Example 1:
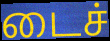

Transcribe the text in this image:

டைச்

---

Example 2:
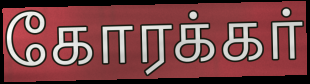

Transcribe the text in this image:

கோரக்கர்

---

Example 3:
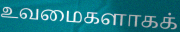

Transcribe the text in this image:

உவமைகளாகக்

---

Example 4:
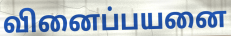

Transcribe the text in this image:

வினைப்பயனை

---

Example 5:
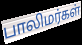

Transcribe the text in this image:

பாலிமர்கள்